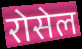
रोसेल